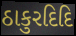
ઠાકુરદિદિ